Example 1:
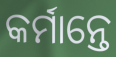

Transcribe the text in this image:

କର୍ମାନ୍ତେ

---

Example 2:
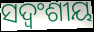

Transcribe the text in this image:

ସଦ୍ବଂଶୀୟ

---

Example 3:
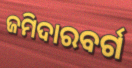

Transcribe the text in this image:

ଜମିଦାରବର୍ଗ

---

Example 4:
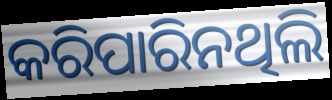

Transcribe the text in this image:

କରିପାରିନଥିଲି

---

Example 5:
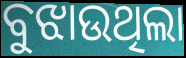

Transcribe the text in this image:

ବୁଝାଉଥିଲା